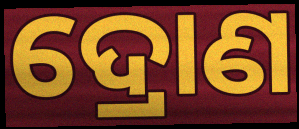
ଦ୍ରୋଣ